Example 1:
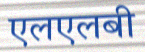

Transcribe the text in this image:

एलएलबी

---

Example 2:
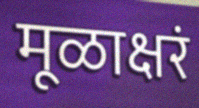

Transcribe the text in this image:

मूळाक्षरं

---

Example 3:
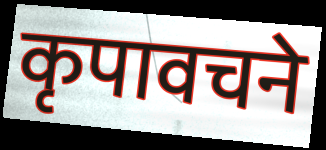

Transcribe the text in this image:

कृपावचने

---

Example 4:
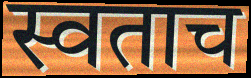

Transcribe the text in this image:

स्वताच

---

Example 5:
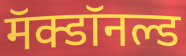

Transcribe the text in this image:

मॅक्डॉनल्ड